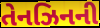
તેનઝિનની